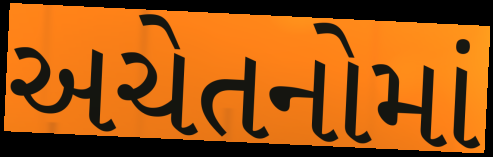
અચેતનોમાં